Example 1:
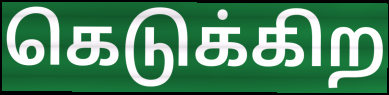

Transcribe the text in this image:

கெடுக்கிற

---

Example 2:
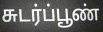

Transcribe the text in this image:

சுடர்ப்பூண்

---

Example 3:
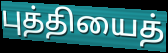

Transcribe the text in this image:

புத்தியைத்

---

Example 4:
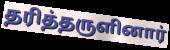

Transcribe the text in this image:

தரித்தருளினார்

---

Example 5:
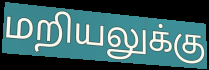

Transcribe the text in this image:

மறியலுக்கு